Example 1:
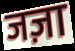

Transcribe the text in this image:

जज़ा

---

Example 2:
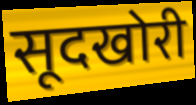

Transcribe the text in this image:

सूदखोरी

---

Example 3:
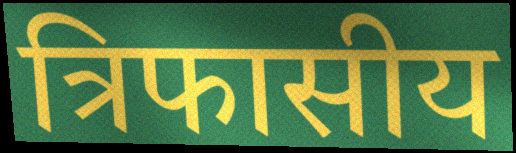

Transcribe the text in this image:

त्रिफासीय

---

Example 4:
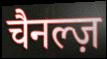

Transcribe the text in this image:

चैनल्ज़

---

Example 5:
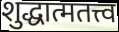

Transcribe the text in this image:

शुद्धात्मतत्त्व